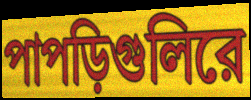
পাপড়িগুলিরে